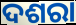
ଦଶରା